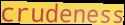
crudeness